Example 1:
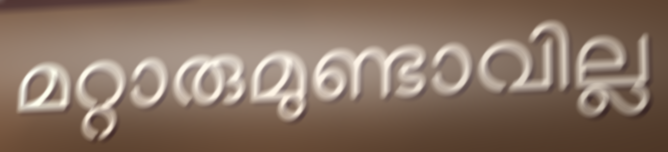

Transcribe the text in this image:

മറ്റാരുമുണ്ടാവില്ല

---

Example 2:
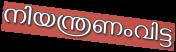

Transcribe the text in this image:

നിയന്ത്രണംവിട്ട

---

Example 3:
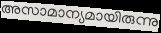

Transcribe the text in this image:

അസാമാന്യമായിരുന്നു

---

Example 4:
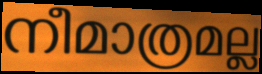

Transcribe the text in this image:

നീമാത്രമല്ല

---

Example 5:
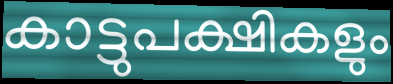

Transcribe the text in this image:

കാട്ടുപക്ഷികളും